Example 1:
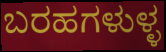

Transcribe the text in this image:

ಬರಹಗಳುಳ್ಳ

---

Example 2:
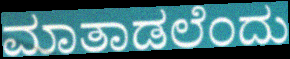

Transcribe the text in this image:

ಮಾತಾಡಲೆಂದು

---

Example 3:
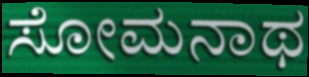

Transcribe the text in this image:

ಸೋಮನಾಥ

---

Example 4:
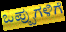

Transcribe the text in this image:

ಒಪ್ಪುಗಳಿಗೆ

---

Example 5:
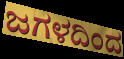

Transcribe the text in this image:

ಜಗಳದಿಂದ